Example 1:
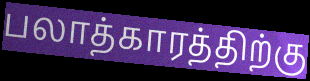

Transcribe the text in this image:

பலாத்காரத்திற்கு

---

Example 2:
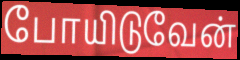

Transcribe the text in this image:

போயிடுவேன்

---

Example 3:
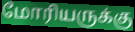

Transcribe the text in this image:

மோரியருக்கு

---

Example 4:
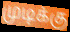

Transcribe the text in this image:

முடிக்கு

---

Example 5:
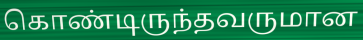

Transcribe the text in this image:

கொண்டிருந்தவருமான